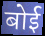
बोई